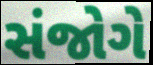
સંજોગે